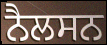
ਨੈਲਸਨ